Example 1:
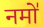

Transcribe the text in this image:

नमो॑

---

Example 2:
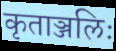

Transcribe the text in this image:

कृताञ्जलिः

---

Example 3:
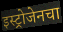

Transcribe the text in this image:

इस्ट्रोजेनचा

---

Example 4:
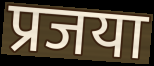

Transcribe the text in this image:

प्रजया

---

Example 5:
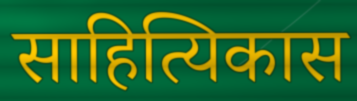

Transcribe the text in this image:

साहित्यिकास